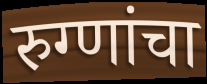
रुग्णांचा